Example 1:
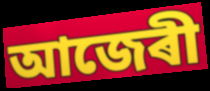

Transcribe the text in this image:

আজেৰী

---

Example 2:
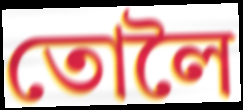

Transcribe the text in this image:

তোলৈ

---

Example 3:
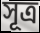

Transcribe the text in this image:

সূত্ৰ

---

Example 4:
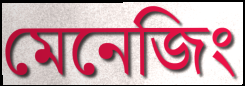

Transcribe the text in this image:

মেনেজিং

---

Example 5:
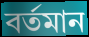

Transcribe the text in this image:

বৰ্তমান